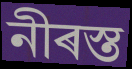
নীৰস্ত